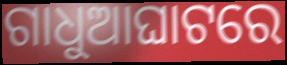
ଗାଧୁଆଘାଟରେ